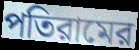
পতিরামের